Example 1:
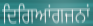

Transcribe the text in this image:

ਦਿਗਿਆਂਗਜਨਾਂ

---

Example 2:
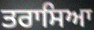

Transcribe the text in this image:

ਤਰਾਸਿਆ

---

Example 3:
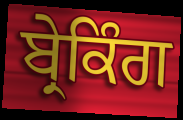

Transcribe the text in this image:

ਬ੍ਰੇਕਿੰਗ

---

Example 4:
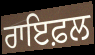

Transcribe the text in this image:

ਰਾਇਫ਼ਲ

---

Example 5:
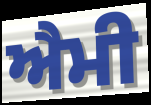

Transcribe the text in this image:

ਐਮੀ